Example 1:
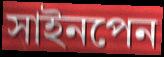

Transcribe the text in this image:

সাইনপেন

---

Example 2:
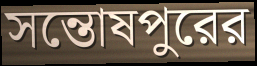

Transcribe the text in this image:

সন্তোষপুরের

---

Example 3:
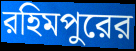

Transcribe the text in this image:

রহিমপুরের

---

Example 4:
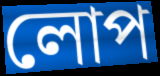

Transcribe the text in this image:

লোপ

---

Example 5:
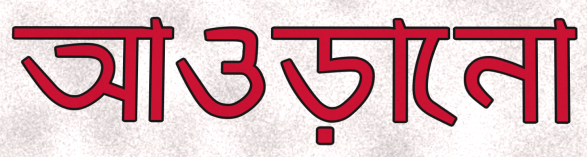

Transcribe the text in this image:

আওড়ানো